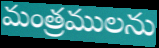
మంత్రములను